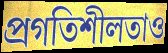
প্রগতিশীলতাও